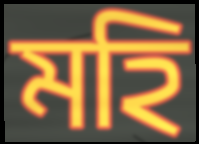
মহি